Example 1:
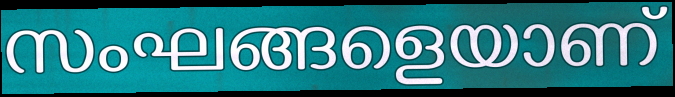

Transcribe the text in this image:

സംഘങ്ങളെയാണ്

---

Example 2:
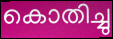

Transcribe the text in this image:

കൊതിച്ചു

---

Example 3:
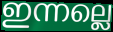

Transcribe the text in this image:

ഇന്നല്ലെ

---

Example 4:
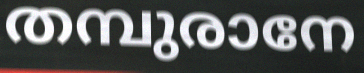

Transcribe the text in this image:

തമ്പുരാനേ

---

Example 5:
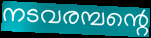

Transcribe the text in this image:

നടവരമ്പന്റെ